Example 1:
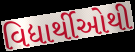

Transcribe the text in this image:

વિદ્યાર્થીઓથી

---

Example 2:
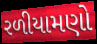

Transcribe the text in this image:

રળીયામણો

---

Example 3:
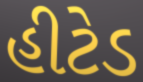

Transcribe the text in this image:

હીટેડ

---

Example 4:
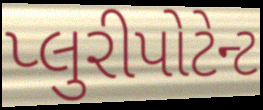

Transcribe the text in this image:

પ્લુરીપોટેન્ટ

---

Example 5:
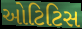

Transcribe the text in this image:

ઓટિટિસ